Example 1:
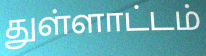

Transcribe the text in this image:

துள்ளாட்டம்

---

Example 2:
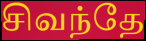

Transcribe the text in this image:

சிவந்தே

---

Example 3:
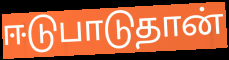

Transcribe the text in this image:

ஈடுபாடுதான்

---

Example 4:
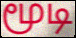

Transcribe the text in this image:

மூடி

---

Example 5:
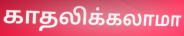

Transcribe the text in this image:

காதலிக்கலாமா